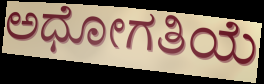
ಅಧೋಗತಿಯೆ